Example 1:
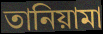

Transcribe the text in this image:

তানিয়ামা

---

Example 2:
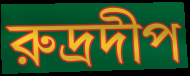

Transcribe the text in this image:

রুদ্রদীপ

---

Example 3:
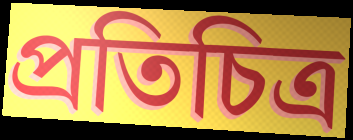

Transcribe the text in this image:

প্রতিচিত্র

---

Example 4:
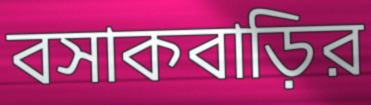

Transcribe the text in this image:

বসাকবাড়ির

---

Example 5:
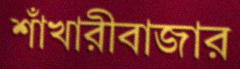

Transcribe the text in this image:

শাঁখারীবাজার